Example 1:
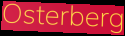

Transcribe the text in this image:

Osterberg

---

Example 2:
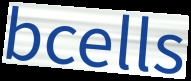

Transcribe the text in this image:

bcells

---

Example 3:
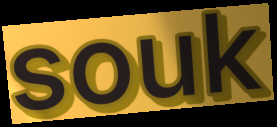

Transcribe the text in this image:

souk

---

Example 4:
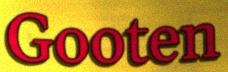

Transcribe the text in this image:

Gooten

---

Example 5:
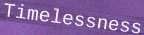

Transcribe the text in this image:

Timelessness